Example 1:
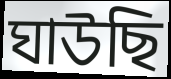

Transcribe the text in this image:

ঘাউছি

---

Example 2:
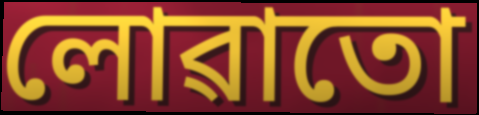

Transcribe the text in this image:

লোৱাতো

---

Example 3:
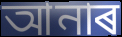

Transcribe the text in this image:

আনাৰ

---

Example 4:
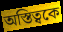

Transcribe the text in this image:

অস্তিত্বকে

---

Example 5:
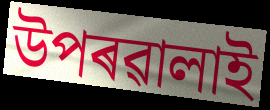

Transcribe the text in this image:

উপৰৱালাই